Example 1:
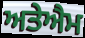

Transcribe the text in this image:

ਅਤੇਐਮ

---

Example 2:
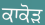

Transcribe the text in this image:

ਕਾਕੋੜ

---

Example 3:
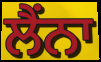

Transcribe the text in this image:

ਲੈਂਨਾ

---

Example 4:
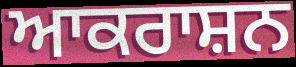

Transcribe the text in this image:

ਆਕਰਾਸ਼ਨ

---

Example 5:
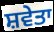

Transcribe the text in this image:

ਸ਼ਵੇਤਾ